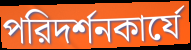
পরিদর্শনকার্যে